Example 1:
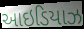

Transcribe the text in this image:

આઇડિયાઝ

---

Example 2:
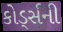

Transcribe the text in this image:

કોર્ડ્સની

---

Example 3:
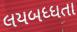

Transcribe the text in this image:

લયબધ્ધતા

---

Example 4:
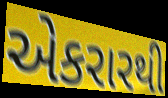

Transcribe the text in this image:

એકરારથી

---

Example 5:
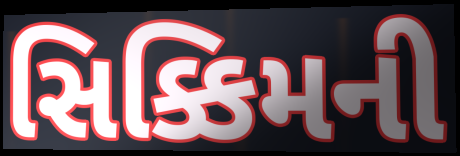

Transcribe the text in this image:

સિક્કિમની